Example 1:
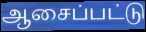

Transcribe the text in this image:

ஆசைப்பட்டு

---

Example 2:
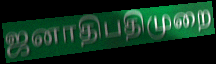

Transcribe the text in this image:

ஜனாதிபதிமுறை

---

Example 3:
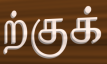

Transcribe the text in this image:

ற்குக்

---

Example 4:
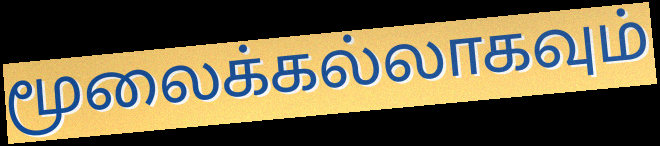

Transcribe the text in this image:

மூலைக்கல்லாகவும்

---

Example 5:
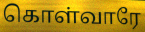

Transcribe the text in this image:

கொள்வாரே